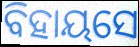
ବିହାୟସେ